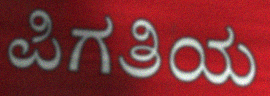
ಪಿಗತಿಯ